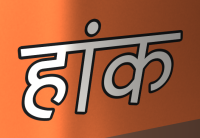
हांक